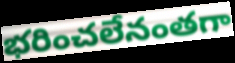
భరించలేనంతగా